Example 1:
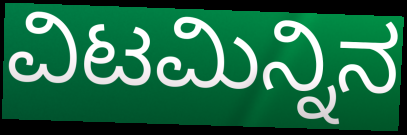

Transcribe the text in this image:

ವಿಟಮಿನ್ನಿನ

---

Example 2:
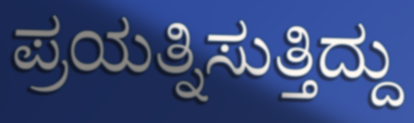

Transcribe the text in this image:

ಪ್ರಯತ್ನಿಸುತ್ತಿದ್ದು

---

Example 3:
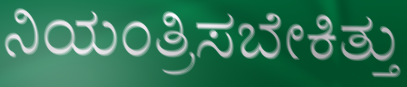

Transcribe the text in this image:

ನಿಯಂತ್ರಿಸಬೇಕಿತ್ತು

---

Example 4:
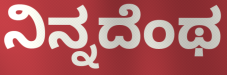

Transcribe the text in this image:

ನಿನ್ನದೆಂಥ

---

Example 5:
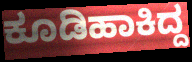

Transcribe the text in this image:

ಕೂಡಿಹಾಕಿದ್ದ